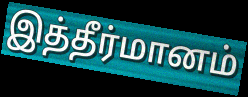
இத்தீர்மானம்